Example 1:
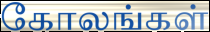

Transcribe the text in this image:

கோலங்கள்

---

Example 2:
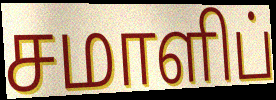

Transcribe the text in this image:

சமாளிப்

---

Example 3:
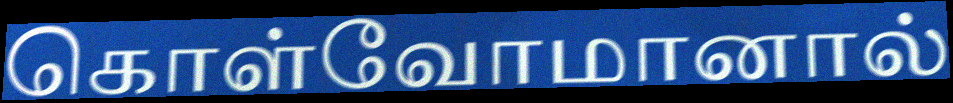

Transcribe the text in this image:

கொள்வோமானால்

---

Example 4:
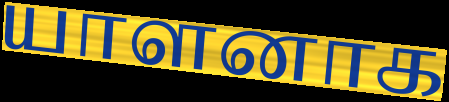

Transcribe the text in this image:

யாளனாக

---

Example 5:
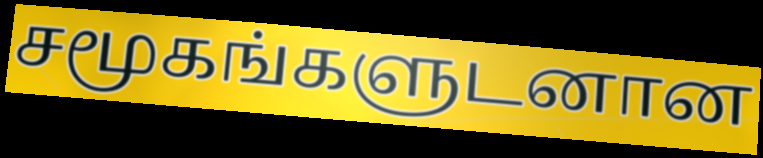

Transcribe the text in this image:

சமூகங்களுடனான